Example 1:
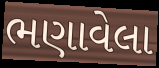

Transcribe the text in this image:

ભણાવેલા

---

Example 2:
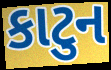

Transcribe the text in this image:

કાટુન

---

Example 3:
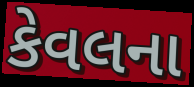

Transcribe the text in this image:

કેવલના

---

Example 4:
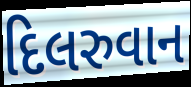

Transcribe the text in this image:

દિલરુવાન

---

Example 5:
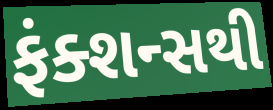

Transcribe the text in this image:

ફંક્શન્સથી